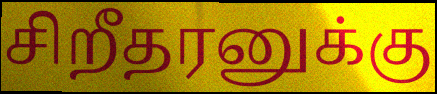
சிறீதரனுக்கு